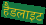
हैडलाइट